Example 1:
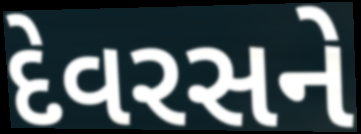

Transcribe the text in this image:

દેવરસને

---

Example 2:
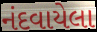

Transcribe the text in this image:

નંદવાયેલા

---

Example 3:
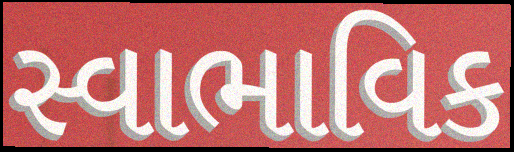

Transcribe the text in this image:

સ્વાભાવિક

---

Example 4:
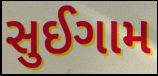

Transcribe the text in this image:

સુઈગામ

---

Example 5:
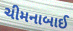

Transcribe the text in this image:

ચીમનાબાઈ